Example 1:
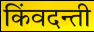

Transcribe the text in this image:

किंवदन्ती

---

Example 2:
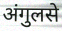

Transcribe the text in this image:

अंगुलसे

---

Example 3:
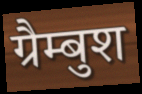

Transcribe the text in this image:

ग्रैम्बुश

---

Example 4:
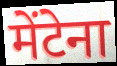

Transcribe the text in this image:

मेंटेना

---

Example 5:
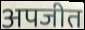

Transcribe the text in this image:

अपजीत